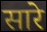
सारे